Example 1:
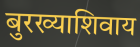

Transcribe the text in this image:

बुरख्याशिवाय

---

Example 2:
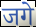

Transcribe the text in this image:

जगे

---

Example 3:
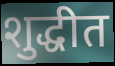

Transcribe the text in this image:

शुद्धीत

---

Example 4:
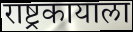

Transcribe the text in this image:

राष्ट्रकायाला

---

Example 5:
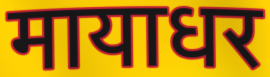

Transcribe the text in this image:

मायाधर